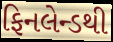
ફિનલેન્ડથી